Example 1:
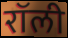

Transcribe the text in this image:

रॉली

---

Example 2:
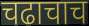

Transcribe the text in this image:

चढाचाच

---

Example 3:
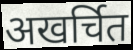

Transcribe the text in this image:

अखर्चित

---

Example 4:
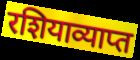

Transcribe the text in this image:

रशियाव्याप्त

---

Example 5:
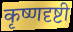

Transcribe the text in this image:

कृष्णदृष्टी